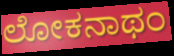
ಲೋಕನಾಥಂ